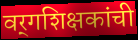
वर्गशिक्षकांची